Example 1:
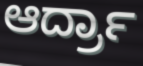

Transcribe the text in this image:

ಆರ್ದ್ರಾ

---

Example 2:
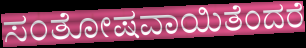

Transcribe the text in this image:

ಸಂತೋಷವಾಯಿತೆಂದರೆ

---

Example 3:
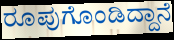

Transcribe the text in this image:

ರೂಪುಗೊಂಡಿದ್ದಾನೆ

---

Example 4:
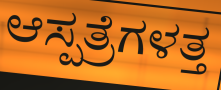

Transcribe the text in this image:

ಆಸ್ಪತ್ರೆಗಳತ್ತ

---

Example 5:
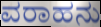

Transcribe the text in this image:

ವರಾಹನು